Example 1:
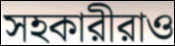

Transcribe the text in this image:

সহকারীরাও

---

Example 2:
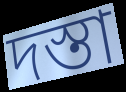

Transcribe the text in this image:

দস্তা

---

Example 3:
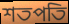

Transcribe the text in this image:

শতপতি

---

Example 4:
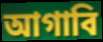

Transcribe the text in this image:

আগাবি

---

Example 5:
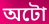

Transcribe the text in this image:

অটো